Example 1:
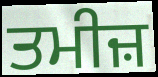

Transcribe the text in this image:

ਤਮੀਜ਼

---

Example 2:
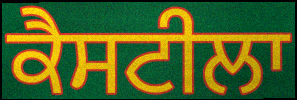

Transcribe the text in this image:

ਕੈਸਟੀਲਾ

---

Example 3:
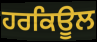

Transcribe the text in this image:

ਹਰਕਿਊਲ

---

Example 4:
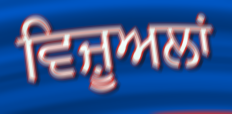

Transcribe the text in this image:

ਵਿਜ਼ੂਅਲਾਂ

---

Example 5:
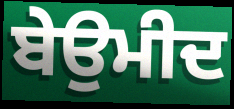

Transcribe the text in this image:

ਬੇਉਮੀਦ